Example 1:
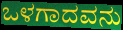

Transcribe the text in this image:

ಒಳಗಾದವನು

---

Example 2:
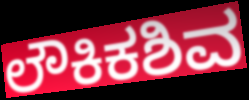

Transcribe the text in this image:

ಲೌಕಿಕಶಿವ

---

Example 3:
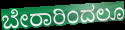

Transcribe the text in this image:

ಬೇರಾರಿಂದಲೂ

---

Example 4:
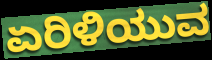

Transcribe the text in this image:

ಏರಿಳಿಯುವ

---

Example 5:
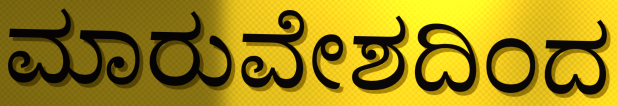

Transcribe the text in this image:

ಮಾರುವೇಶದಿಂದ